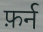
फ़र्न